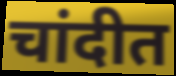
चांदीत